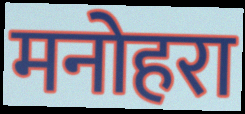
मनोहरा